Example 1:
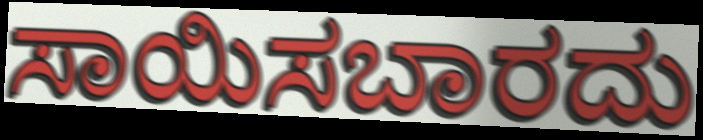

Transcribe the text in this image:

ಸಾಯಿಸಬಾರದು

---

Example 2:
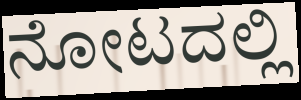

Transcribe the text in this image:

ನೋಟದಲ್ಲಿ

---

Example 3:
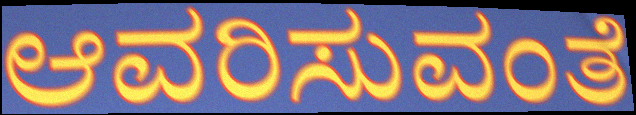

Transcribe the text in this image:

ಆವರಿಸುವಂತೆ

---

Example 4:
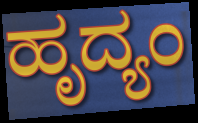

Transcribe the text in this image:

ಹೃದ್ಯಂ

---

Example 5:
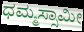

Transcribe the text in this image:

ಧಮ್ಮಸ್ಸಾಮೀ